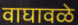
वाघावळे